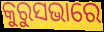
କୁରୁସଭାରେ